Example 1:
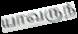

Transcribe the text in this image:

யாவருந்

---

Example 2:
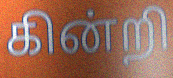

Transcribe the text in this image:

கின்றி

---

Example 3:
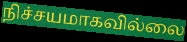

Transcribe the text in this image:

நிச்சயமாகவில்லை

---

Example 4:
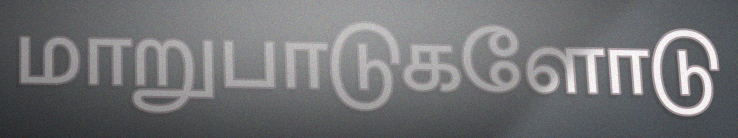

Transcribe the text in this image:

மாறுபாடுகளோடு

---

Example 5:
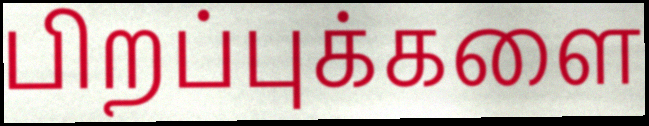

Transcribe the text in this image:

பிறப்புக்களை